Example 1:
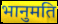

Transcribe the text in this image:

भानुमति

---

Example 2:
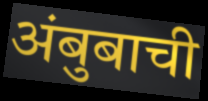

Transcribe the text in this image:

अंबुबाची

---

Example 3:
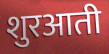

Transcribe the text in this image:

शुरआती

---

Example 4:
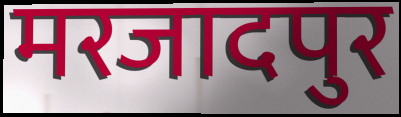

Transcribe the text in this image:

मरजादपुर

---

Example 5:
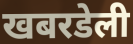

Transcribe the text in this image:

खबरडेली